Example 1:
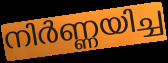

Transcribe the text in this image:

നിർണ്ണയിച്ച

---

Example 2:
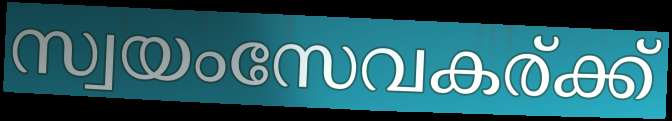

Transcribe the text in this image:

സ്വയംസേവകര്ക്ക്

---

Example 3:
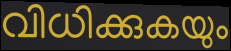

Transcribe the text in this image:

വിധിക്കുകയും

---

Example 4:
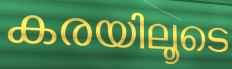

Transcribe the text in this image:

കരയിലൂടെ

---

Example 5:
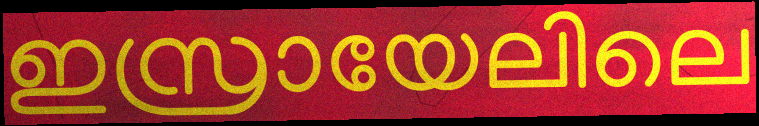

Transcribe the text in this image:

ഇസ്രായേലിലെ